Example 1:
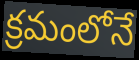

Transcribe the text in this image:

క్రమంలోనే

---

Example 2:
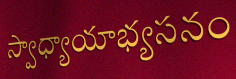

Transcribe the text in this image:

స్వాధ్యాయాభ్యసనం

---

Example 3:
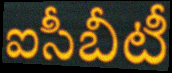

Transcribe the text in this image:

ఐసీబీటీ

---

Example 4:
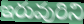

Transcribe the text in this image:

ఇరువురిని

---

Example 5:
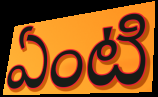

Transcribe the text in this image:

ఏంటి